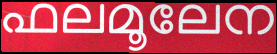
ഫലമൂലേന